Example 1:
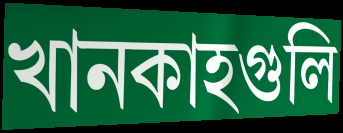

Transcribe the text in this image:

খানকাহগুলি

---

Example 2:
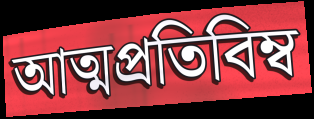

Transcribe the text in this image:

আত্মপ্রতিবিম্ব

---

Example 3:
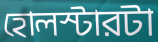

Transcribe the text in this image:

হোলস্টারটা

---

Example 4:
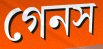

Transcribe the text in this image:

গেনস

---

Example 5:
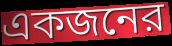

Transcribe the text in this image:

একজনের